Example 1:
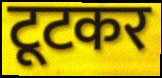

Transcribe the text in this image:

टूटकर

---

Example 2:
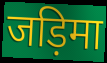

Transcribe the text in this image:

जड़िमा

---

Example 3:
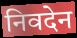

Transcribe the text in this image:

निवदेन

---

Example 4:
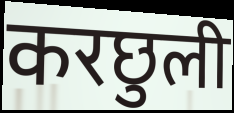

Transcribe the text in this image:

करछुली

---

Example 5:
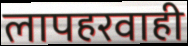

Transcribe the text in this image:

लापहरवाही